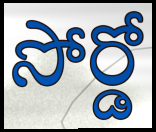
సోర్డో